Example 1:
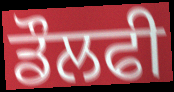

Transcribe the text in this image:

ਡੌਲਫੀ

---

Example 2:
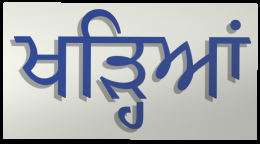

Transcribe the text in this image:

ਖੜ੍ਹਿਆਂ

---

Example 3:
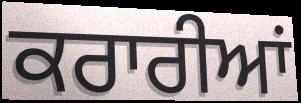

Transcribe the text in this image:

ਕਰਾਰੀਆਂ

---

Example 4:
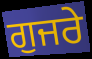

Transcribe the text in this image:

ਗੁਜਰੇ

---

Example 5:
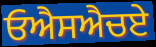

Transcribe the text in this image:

ਓਐਸਐਚਏ